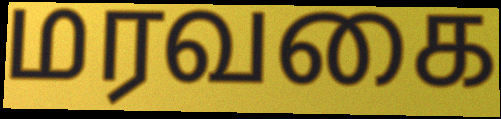
மரவகை